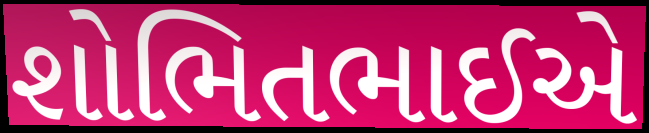
શોભિતભાઈએ